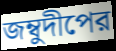
জম্বুদীপের